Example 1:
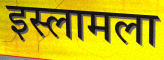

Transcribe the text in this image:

इस्लामला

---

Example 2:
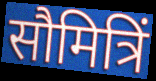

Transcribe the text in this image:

सौमित्रिं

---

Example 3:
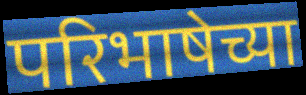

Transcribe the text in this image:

परिभाषेच्या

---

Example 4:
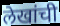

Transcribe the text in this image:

लेखांची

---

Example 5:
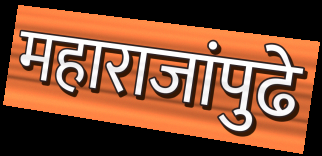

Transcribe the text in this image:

महाराजांपुढे